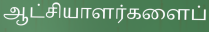
ஆட்சியாளர்களைப்